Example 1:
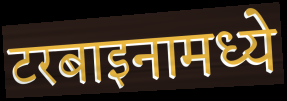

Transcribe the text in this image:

टरबाइनामध्ये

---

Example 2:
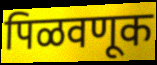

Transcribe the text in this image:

पिळवणूक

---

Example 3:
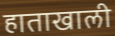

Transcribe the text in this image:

हाताखाली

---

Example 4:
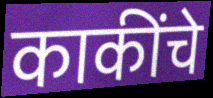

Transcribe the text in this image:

काकींचे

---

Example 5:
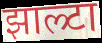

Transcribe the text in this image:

झाल्टा